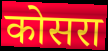
कोसरा